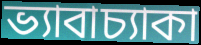
ভ্যাবাচ্যাকা